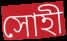
সোহী